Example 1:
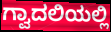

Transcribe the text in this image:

ಗ್ವಾದಲಿಯಲ್ಲಿ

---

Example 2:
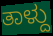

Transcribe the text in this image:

ತಾಳ್ದು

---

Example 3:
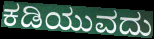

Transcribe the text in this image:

ಕಡಿಯುವದು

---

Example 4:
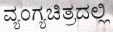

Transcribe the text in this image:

ವ್ಯಂಗ್ಯಚಿತ್ರದಲ್ಲಿ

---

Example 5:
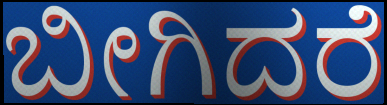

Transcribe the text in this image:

ಬೀಗಿದರೆ